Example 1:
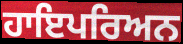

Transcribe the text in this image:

ਹਾਇਪਰਿਅਨ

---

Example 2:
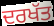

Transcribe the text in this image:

ਦਰਖੱਤ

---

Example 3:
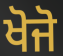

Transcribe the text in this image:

ਖੋਜੋ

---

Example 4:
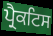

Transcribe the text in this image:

ਪ੍ਰੈਕਟਿਸ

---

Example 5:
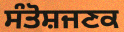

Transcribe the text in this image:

ਸੰਤੋਸ਼ਜਣਕ